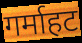
गर्माहट